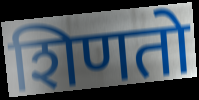
शिणतो